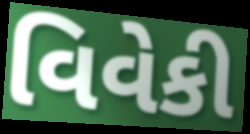
વિવેકી